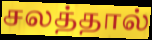
சலத்தால்